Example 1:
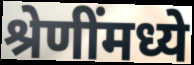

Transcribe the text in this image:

श्रेणींमध्ये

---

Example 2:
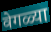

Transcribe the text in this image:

वेगळ्या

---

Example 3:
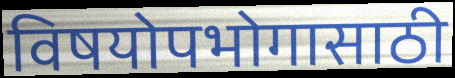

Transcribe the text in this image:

विषयोपभोगासाठी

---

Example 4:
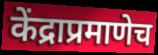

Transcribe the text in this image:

केंद्राप्रमाणेच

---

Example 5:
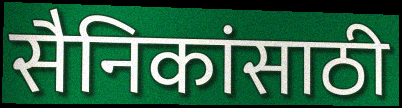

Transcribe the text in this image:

सैनिकांसाठी